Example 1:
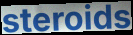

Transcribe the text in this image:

steroids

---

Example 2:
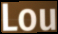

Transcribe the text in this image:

Lou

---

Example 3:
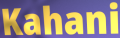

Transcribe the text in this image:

Kahani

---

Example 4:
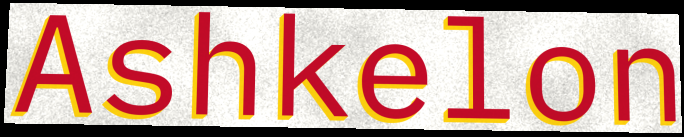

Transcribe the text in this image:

Ashkelon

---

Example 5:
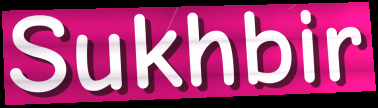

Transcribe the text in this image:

Sukhbir